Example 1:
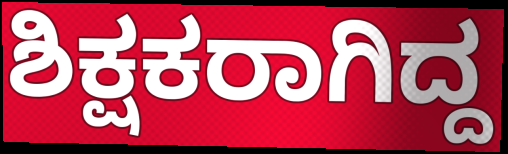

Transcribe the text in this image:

ಶಿಕ್ಷಕರಾಗಿದ್ದ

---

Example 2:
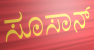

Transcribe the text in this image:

ಸೂಸಾನ್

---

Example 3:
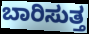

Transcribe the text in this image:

ಬಾರಿಸುತ್ತ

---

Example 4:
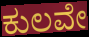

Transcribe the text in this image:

ಕುಲವೇ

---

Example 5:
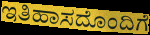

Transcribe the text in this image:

ಇತಿಹಾಸದೊಂದಿಗೆ